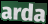
arda